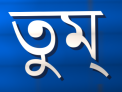
তুম্